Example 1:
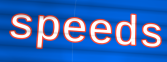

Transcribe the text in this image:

speeds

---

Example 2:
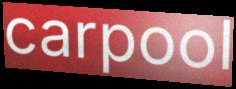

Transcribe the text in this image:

carpool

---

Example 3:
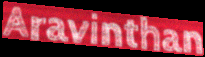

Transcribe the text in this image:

Aravinthan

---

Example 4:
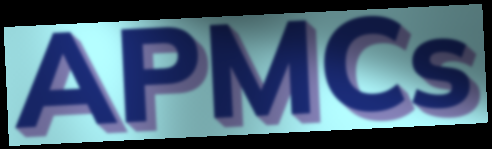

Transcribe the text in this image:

APMCs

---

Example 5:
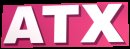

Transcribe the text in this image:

ATX